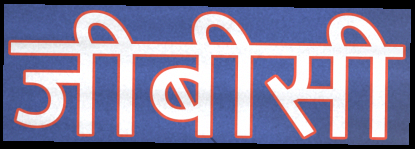
जीबीसी